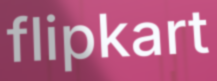
flipkart